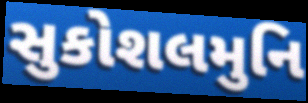
સુકોશલમુનિ